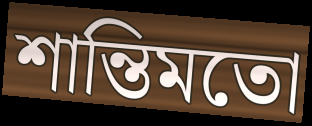
শান্তিমতো